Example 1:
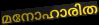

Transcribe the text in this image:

മനോഹാരിത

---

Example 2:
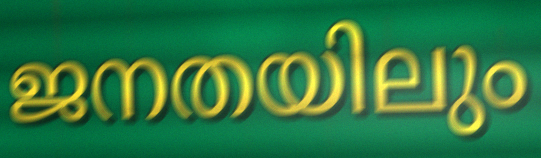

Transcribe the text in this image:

ജനതയിലും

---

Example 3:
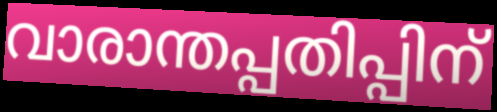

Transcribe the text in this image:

വാരാന്തപ്പതിപ്പിന്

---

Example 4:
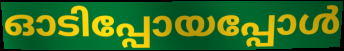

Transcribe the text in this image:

ഓടിപ്പോയപ്പോൾ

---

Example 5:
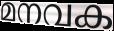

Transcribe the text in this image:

മനവക